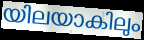
യിലയാകിലും